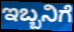
ಇಬ್ಬನಿಗೆ